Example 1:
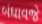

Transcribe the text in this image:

બંધાવજે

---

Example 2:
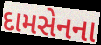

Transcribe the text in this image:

દામસેનના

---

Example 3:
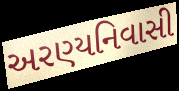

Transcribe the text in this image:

અરણ્યનિવાસી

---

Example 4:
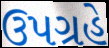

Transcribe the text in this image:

ઉપગ્રહે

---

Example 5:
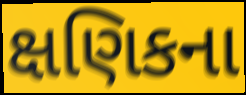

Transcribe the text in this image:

ક્ષણિકના